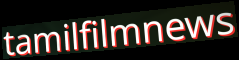
tamilfilmnews